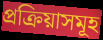
প্ৰক্ৰিয়াসমূহ